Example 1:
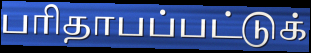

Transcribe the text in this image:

பரிதாபப்பட்டுக்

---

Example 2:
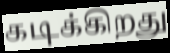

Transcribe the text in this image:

கடிக்கிறது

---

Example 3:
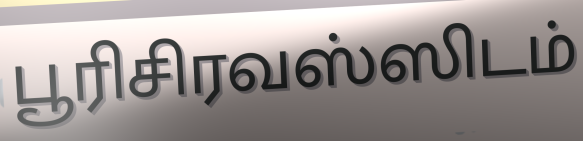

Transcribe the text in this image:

பூரிசிரவஸ்ஸிடம்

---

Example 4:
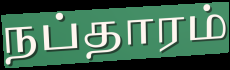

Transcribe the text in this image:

நப்தாரம்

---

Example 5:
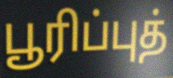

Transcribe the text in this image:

பூரிப்புத்